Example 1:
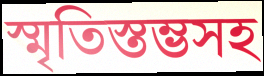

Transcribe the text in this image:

স্মৃতিস্তম্ভসহ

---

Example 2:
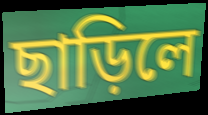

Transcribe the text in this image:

ছাড়িলে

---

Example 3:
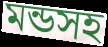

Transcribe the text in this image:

মন্ডসহ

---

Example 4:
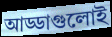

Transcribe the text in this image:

আড্ডাগুলোই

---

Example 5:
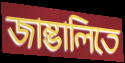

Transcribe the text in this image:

জাম্ভালিতে